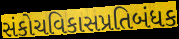
સંકોચવિકાસપ્રતિબંધક